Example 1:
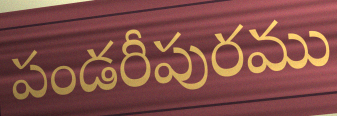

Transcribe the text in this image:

పండరీపురము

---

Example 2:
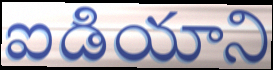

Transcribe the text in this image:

ఐడియాని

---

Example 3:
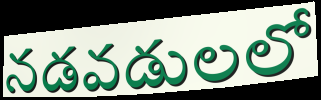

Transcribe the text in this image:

నడవడులలో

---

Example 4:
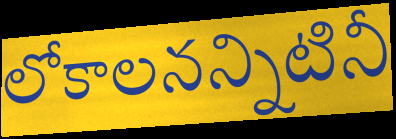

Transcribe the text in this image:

లోకాలనన్నిటినీ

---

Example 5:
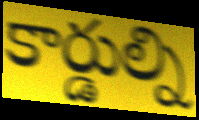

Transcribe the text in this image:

కార్డుల్ని